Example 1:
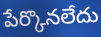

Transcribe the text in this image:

పేర్కొనలేదు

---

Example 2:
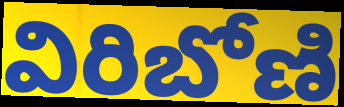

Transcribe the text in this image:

విరిబోణి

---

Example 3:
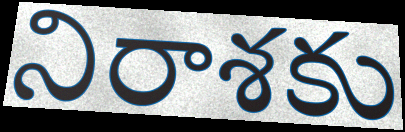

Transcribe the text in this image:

నిరాశకు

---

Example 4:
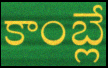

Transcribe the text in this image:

కాంబ్లే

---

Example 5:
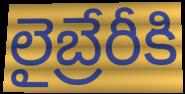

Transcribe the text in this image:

లైబ్రేరీకి